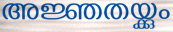
അജ്ഞതയ്ക്കും